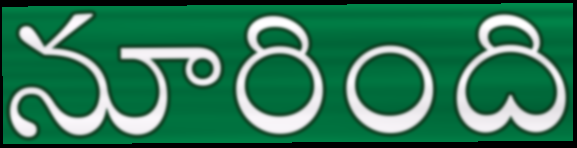
నూరింది